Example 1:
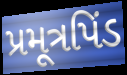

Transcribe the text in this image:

પ્રમૂત્રપિંડ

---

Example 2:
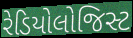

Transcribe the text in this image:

રેડિયોલોજિસ્ટ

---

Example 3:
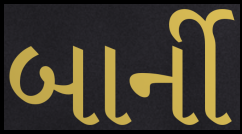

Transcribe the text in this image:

બાર્ની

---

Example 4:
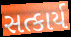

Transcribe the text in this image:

સત્કાર્ય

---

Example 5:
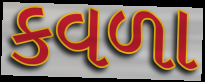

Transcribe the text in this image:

કવળા